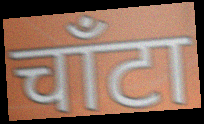
चाँटा